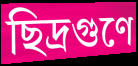
ছিদ্রগুণে